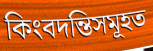
কিংবদন্তিসমূহত